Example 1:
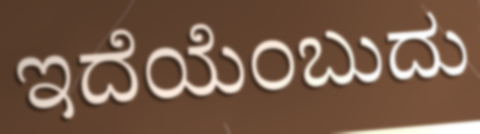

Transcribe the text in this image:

ಇದೆಯೆಂಬುದು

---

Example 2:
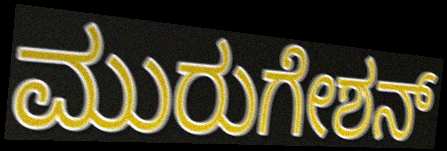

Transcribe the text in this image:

ಮುರುಗೇಶನ್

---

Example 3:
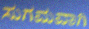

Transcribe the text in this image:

ಸುಗಮವಾಗಿ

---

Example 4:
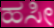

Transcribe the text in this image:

ಹಸೀ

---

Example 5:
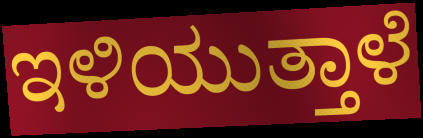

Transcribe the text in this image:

ಇಳಿಯುತ್ತಾಳೆ